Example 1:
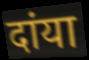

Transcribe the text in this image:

दांया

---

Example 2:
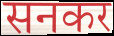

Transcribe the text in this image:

सनकर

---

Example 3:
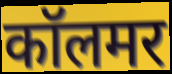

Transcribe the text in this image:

कॉलमर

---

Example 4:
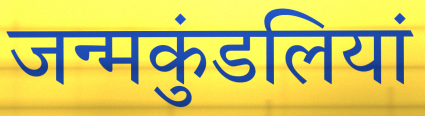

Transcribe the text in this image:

जन्मकुंडलियां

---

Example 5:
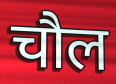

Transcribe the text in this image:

चौल